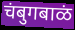
चंबुगबाळं